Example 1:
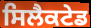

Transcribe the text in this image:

ਸਿਲੈਕਟੇਡ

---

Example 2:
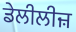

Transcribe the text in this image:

ਡੇਲੀਲੀਜ਼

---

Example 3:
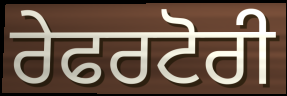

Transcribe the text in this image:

ਰੇਫਰਟੋਰੀ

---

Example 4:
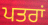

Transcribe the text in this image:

ਪਤਰਾਂ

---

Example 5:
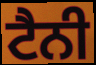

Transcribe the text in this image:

ਟੈਨੀ